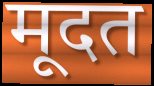
मूदत